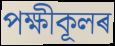
পক্ষীকূলৰ